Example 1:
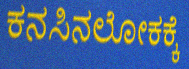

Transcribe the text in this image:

ಕನಸಿನಲೋಕಕ್ಕೆ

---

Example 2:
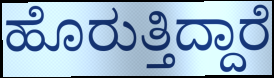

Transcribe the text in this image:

ಹೊರುತ್ತಿದ್ದಾರೆ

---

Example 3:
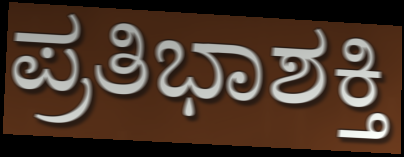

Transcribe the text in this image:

ಪ್ರತಿಭಾಶಕ್ತಿ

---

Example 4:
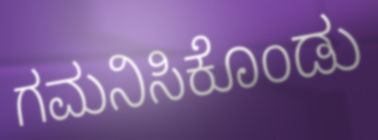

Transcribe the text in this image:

ಗಮನಿಸಿಕೊಂಡು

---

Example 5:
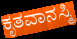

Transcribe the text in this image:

ಕೃತವಾನಸ್ಮಿ